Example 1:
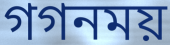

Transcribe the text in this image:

গগনময়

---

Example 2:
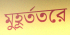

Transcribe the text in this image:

মুহূর্ততরে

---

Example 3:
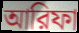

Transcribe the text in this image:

আরিফা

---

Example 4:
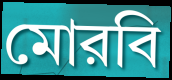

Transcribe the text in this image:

মোরবি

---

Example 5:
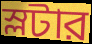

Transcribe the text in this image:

স্লটার